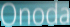
Onoda